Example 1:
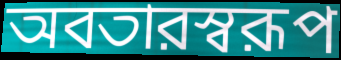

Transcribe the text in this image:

অবতারস্বরূপ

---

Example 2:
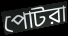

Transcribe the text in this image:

পোটরা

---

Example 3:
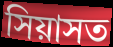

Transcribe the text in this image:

সিয়াসত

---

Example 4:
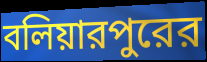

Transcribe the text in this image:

বলিয়ারপুরের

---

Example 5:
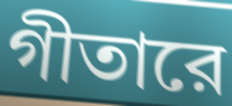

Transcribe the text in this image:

গীতারে